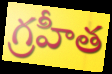
గ్రహీత